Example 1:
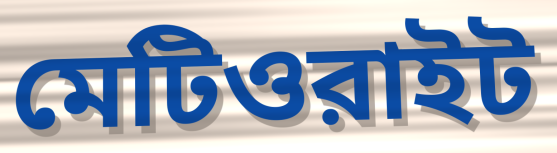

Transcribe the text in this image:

মেটিওরাইট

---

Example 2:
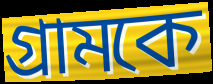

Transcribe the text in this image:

গ্রামকে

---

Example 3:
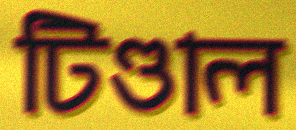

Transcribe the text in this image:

টিণ্ডাল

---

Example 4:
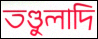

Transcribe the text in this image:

তণ্ডুলাদি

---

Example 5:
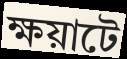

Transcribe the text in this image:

ক্ষয়াটে